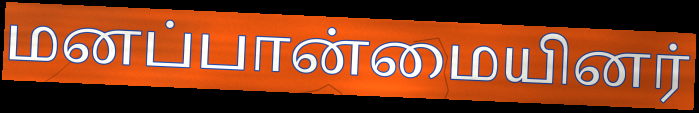
மனப்பான்மையினர்